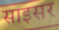
साइसर